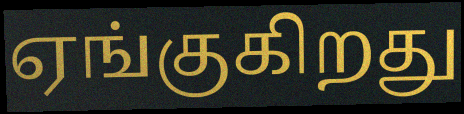
ஏங்குகிறது